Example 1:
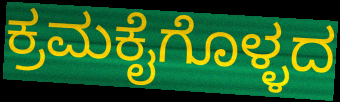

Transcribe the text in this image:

ಕ್ರಮಕೈಗೊಳ್ಳದ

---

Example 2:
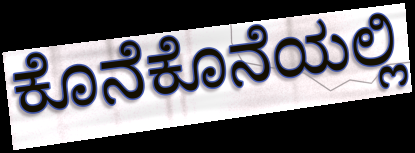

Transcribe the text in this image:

ಕೊನೆಕೊನೆಯಲ್ಲಿ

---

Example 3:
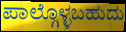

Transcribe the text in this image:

ಪಾಲ್ಗೊಳ್ಳಬಹುದು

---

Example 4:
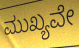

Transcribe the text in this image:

ಮುಖ್ಯವೇ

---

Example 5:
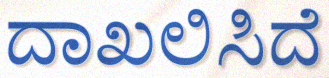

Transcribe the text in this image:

ದಾಖಲಿಸಿದೆ